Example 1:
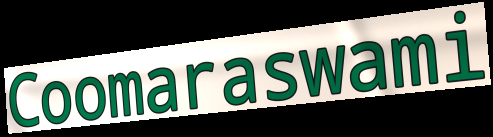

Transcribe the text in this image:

Coomaraswami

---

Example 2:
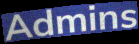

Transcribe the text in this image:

Admins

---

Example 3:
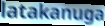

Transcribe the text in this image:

latakanuga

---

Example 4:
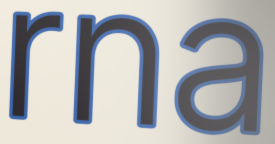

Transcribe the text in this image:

rna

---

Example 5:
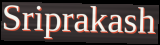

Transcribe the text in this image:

Sriprakash